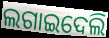
ଲଗାଇଦେଲି